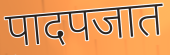
पादपजात